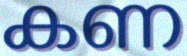
കണ